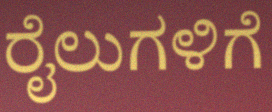
ರೈಲುಗಳಿಗೆ